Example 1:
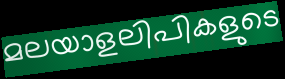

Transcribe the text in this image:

മലയാളലിപികളുടെ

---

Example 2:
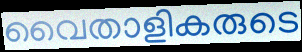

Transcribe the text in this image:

വൈതാളികരുടെ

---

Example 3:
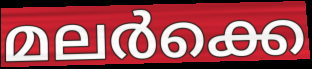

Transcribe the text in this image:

മലർക്കെ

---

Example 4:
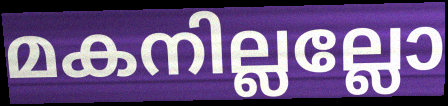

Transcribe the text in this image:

മകനില്ലല്ലോ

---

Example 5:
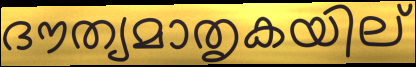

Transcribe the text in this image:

ദൗത്യമാതൃകയില്